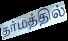
தர்மத்தில்